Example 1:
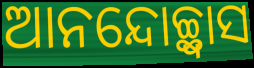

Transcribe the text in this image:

ଆନନ୍ଦୋଚ୍ଛ୍ୱାସ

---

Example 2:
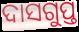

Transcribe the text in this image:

ଦାସଗୁପ୍ତ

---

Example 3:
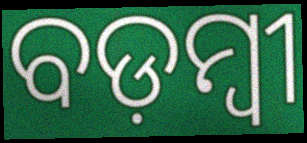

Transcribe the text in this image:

ବଡ଼ମ୍ବୀ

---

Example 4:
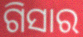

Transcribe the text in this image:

ଗିସାର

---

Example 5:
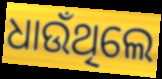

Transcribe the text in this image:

ଧାଉଁଥିଲେ